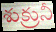
శుక్రునీ